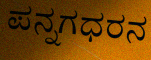
ಪನ್ನಗಧರನ